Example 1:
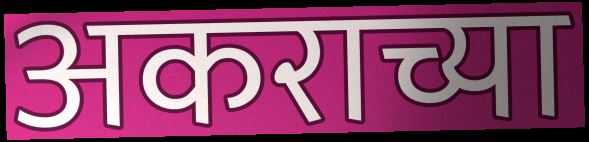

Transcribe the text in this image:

अकराच्या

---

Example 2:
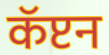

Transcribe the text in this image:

कॅप्टन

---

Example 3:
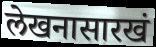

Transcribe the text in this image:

लेखनासारखं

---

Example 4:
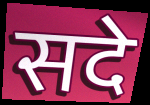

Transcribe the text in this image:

सदे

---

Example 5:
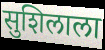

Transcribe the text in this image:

सुशिलाला